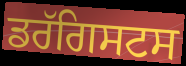
ਡਰੱਗਿਸਟਸ